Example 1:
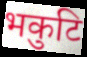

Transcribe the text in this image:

भकुटि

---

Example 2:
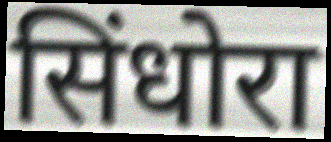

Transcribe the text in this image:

सिंधोरा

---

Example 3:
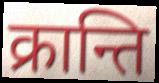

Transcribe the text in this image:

क्रान्ति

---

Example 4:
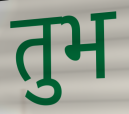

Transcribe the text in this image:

तुभ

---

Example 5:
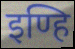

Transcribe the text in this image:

इण्हि